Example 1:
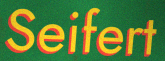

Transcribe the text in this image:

Seifert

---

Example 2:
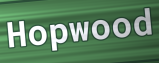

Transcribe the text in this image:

Hopwood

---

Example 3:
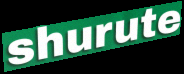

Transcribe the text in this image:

shurute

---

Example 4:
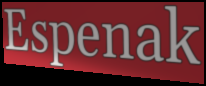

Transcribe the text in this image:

Espenak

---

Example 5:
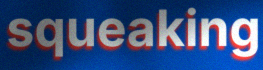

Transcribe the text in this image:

squeaking